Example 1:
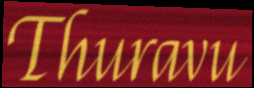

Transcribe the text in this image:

Thuravu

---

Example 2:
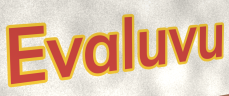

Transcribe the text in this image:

Evaluvu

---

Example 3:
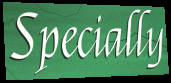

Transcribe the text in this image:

Specially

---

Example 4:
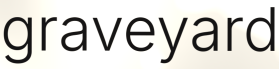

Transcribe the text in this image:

graveyard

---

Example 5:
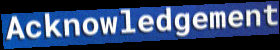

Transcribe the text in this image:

Acknowledgement